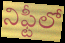
నిఫ్టీలో